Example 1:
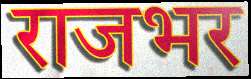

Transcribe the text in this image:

राजभर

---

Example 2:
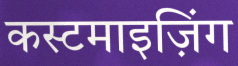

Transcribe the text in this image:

कस्टमाइज़िंग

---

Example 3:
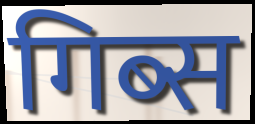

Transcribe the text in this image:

गिब्स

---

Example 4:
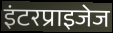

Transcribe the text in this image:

इंटरप्राइजेज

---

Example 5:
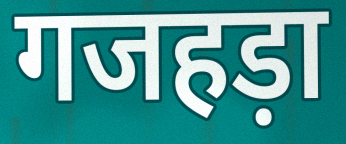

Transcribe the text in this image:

गजहड़ा